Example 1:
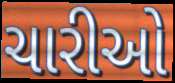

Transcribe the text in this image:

ચારીઓ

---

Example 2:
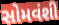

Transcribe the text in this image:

સોમવંશી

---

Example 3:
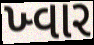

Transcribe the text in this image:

ખ્વાર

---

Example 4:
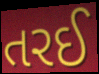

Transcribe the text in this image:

તરઈ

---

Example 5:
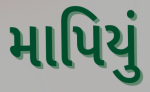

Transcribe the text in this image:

માપિયું